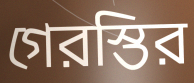
গেরস্তির